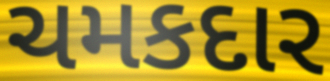
ચમકદાર